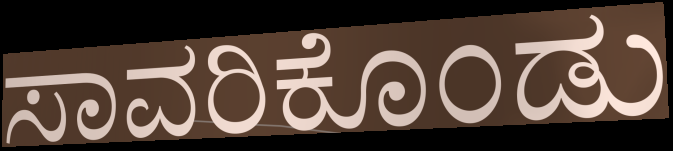
ಸಾವರಿಕೊಂಡು